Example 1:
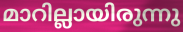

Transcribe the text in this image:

മാറില്ലായിരുന്നു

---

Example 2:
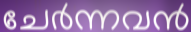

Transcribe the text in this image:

ചേർന്നവൻ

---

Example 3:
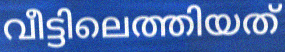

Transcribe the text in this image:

വീട്ടിലെത്തിയത്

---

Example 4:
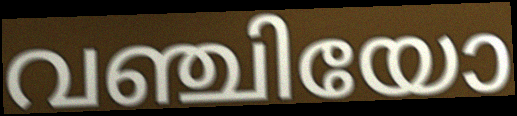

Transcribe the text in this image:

വഞ്ചിയോ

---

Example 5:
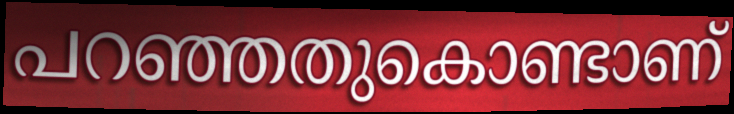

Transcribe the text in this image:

പറഞ്ഞതുകൊണ്ടാണ്